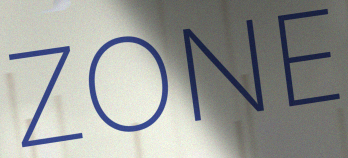
ZONE